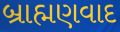
બ્રાહ્મણવાદ